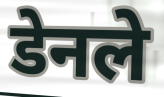
डेनले